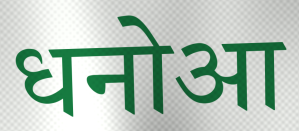
धनोआ